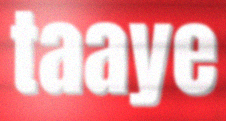
taaye